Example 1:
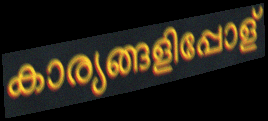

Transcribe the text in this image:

കാര്യങ്ങളിപ്പോള്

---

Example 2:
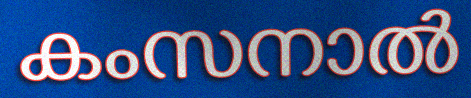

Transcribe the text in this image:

കംസനാൽ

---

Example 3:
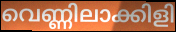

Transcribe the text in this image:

വെണ്ണിലാക്കിളി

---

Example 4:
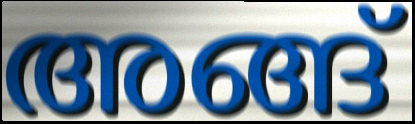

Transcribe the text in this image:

അങ്ങ്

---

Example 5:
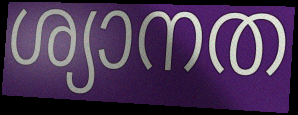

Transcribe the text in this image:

ശ്യാനത